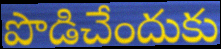
పొడిచేందుకు